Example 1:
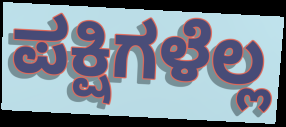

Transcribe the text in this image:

ಪಕ್ಷಿಗಳೆಲ್ಲ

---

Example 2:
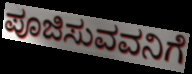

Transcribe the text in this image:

ಪೂಜಿಸುವವನಿಗೆ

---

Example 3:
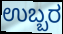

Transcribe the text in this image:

ಉಬ್ಬರ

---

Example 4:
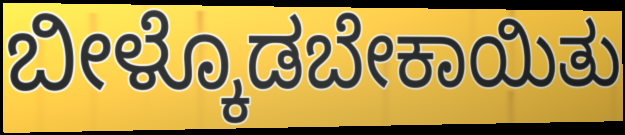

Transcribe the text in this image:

ಬೀಳ್ಕೊಡಬೇಕಾಯಿತು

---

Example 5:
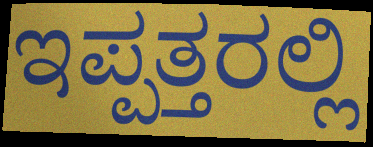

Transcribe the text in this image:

ಇಪ್ಪತ್ತರಲ್ಲಿ